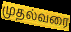
முதல்வரை